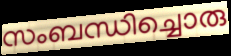
സംബന്ധിച്ചൊരു